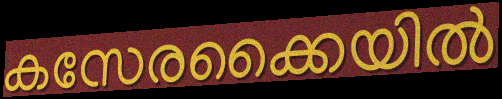
കസേരക്കൈയിൽ